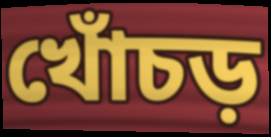
খোঁচড়